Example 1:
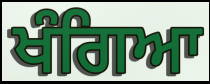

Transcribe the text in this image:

ਖੰਗਿਆ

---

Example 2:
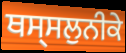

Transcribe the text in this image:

ਥਸ੍ਸਲੁਨੀਕੇ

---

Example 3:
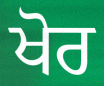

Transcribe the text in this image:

ਖੋਰ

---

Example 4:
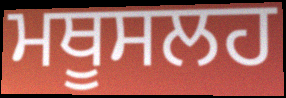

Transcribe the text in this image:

ਮਥੂਸਲਹ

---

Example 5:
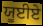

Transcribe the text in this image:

ਯੂਈਏ